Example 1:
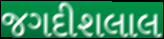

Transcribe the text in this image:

જગદીશલાલ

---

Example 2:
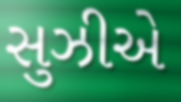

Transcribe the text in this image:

સુઝીએ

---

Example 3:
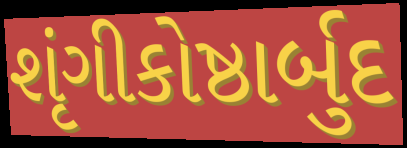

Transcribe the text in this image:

શૃંગીકોષ્ઠાર્બુદ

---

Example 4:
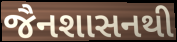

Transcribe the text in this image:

જૈનશાસનથી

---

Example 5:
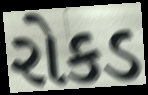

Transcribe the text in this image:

રોકડ